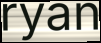
ryan